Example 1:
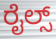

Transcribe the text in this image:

ರೈಲ್ಸ್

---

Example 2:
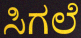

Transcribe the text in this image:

ಸಿಗಲೆ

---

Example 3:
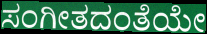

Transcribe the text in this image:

ಸಂಗೀತದಂತೆಯೇ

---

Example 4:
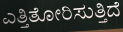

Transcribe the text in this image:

ಎತ್ತಿತೋರಿಸುತ್ತಿದೆ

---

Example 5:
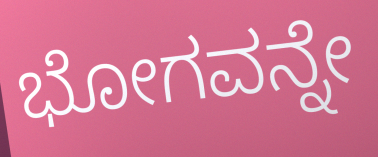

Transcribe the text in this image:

ಭೋಗವನ್ನೇ